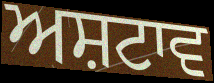
ਅਸ਼ਟਾਵ